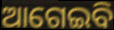
ଆଗେଇବି